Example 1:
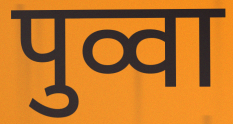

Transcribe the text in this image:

पुव्वा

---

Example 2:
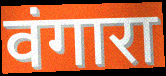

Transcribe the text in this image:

वंगारा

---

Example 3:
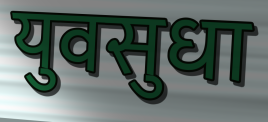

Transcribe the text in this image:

युवसुधा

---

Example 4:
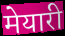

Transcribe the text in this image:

मेयारी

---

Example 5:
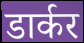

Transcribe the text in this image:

डार्कर